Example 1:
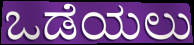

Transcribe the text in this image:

ಒಡೆಯಲು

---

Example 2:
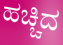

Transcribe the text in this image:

ಹಚ್ಚಿದ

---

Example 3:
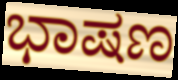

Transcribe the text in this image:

ಭಾಷಣ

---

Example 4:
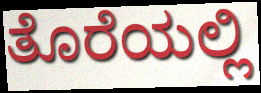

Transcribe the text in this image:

ತೊರೆಯಲ್ಲಿ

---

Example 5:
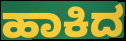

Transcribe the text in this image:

ಹಾಕಿದ